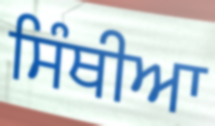
ਸਿੰਥੀਆ